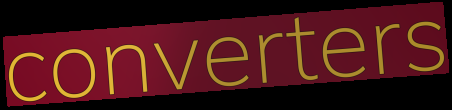
converters